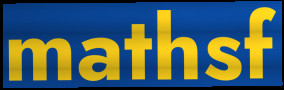
mathsf